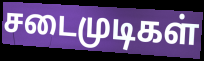
சடைமுடிகள்